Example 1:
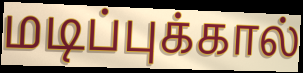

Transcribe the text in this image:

மடிப்புக்கால்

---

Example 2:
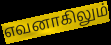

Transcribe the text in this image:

எவனாகிலும்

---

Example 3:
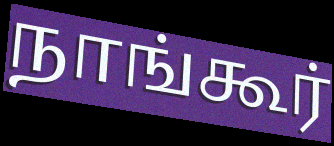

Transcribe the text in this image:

நாங்கூர்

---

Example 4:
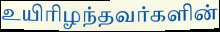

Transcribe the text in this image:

உயிரிழந்தவர்களின்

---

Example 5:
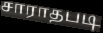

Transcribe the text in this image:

சாராதபடி